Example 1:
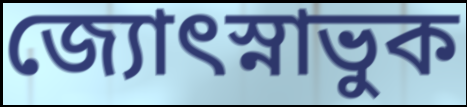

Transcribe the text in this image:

জ্যোৎস্নাভুক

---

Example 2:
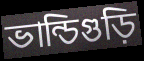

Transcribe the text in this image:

ভান্ডিগুড়ি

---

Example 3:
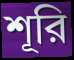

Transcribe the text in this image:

শূরি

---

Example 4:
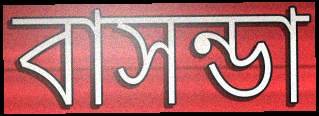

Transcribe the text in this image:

বাসন্ডা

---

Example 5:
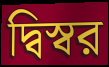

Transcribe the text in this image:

দ্বিস্বর